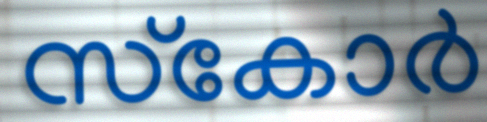
സ്‌കോർ